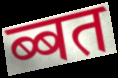
ब्बत